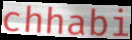
chhabi